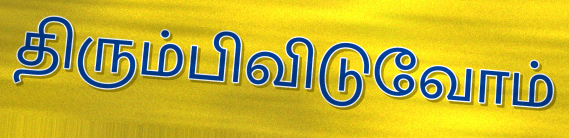
திரும்பிவிடுவோம்